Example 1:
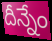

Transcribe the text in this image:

దీన్నేం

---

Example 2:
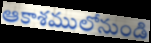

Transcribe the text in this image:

ఆకాశములోనుండి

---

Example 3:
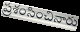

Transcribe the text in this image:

ప్రశంసించినారు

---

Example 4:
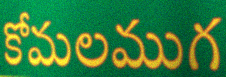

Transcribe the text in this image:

కోమలముగ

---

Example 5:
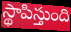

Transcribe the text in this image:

స్థాపిస్తుంది